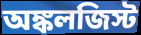
অঙ্কলজিস্ট